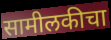
सामीलकीचा